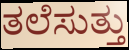
ತಲೆಸುತ್ತು